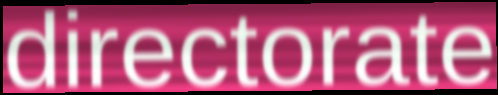
directorate